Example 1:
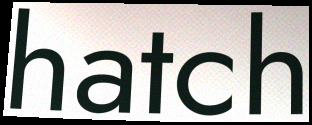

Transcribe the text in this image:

hatch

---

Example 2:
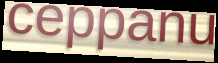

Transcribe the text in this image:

ceppanu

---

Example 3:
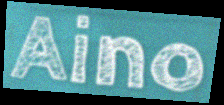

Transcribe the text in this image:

Aino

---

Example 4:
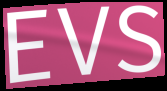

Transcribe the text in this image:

EVS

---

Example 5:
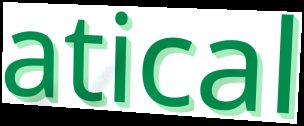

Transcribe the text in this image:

atical